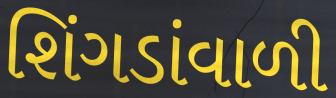
શિંગડાંવાળી